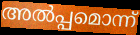
അൽപ്പമൊന്ന്